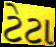
ટેટા